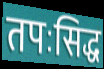
तपःसिद्ध